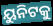
ୟୁନିଟକୁ